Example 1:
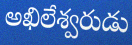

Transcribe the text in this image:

అఖిలేశ్వరుడు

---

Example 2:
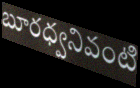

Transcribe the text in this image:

బూరధ్వనివంటి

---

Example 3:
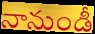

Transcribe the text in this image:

నానుండీ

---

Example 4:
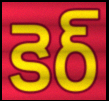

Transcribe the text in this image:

కెర్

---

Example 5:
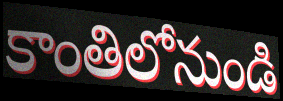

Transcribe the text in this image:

కాంతిలోనుండి